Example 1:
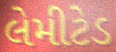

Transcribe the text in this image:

લેમીટેડ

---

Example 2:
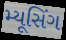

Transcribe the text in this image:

મ્યૂસિંગ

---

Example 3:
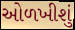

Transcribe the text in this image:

ઓળખીશું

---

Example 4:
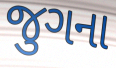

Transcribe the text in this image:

જુગના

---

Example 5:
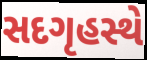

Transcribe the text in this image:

સદગૃહસ્થે